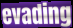
evading